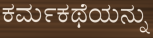
ಕರ್ಮಕಥೆಯನ್ನು